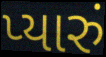
પ્યારું